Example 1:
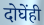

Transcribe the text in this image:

दोघेंही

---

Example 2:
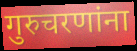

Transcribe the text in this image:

गुरुचरणांना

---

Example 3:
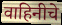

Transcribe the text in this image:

वाहिनीचे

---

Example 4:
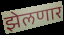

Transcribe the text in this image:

झेलणार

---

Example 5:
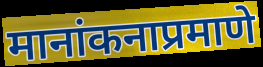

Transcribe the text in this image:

मानांकनाप्रमाणे